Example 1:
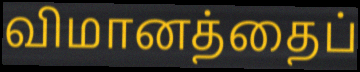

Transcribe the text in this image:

விமானத்தைப்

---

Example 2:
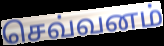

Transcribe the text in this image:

செவ்வனம்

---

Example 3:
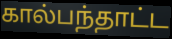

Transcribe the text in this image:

கால்பந்தாட்ட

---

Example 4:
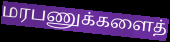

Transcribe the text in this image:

மரபணுக்களைத்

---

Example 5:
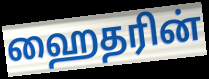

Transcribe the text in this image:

ஹைதரின்